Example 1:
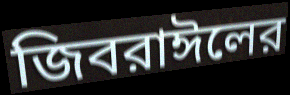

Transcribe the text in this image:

জিবরাঈলের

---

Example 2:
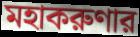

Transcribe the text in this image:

মহাকরুণার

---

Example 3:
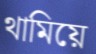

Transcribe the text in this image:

থামিয়ে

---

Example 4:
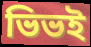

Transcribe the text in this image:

ভিভই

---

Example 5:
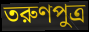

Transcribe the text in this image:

তরুণপুত্র